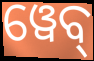
ୱେବ୍